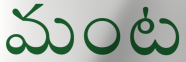
మంట